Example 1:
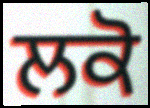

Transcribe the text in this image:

ਲਕੋ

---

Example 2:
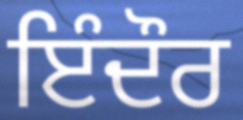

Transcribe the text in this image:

ਇੰਦੌਰ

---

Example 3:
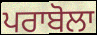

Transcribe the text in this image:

ਪਰਾਬੋਲਾ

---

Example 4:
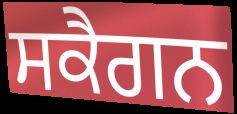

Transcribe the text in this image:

ਸਕੈਗਨ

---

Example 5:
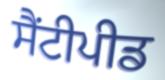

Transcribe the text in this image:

ਸੈਂਟੀਪੀਡ